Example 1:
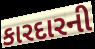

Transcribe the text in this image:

કારદારની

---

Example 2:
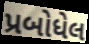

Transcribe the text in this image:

પ્રબોધેલ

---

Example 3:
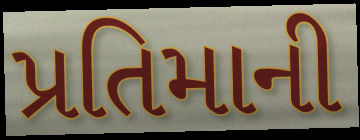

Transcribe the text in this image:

પ્રતિમાની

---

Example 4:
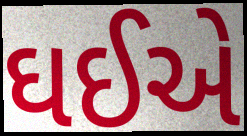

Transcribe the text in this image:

ઘઈએ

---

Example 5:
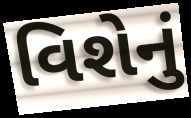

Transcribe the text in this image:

વિશેનું